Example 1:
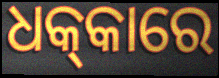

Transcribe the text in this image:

ଧକ୍‍କାରେ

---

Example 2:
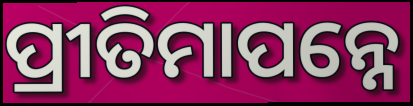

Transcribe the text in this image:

ପ୍ରୀତିମାପନ୍ନେ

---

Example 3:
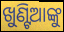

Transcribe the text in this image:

ଖୁଣ୍ଟିଆଙ୍କୁ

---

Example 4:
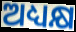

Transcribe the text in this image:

ଅଧ୍ୟକ୍ଷ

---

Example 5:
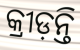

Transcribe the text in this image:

କ୍ରୀଡ଼ନ୍ତି